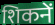
शिकनें